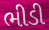
ભીડી